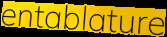
entablature